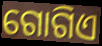
ଗୋଗିଏ